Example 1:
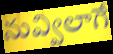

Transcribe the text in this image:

నువ్విలాగే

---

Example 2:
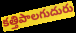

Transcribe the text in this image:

కత్తిపాలగుదురు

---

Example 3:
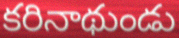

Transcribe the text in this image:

కరినాథుండు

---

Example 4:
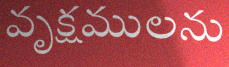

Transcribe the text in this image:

వృక్షములను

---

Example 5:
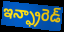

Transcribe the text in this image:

ఇన్ఫ్రారెడ్